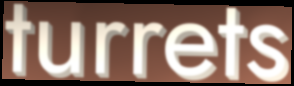
turrets